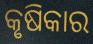
କୃଷିକାର